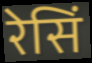
रेसिं